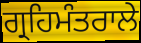
ਗ੍ਰਹਿਮੰਤਰਾਲੇ